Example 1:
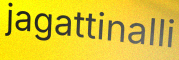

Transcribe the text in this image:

jagattinalli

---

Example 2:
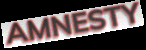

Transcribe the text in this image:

AMNESTY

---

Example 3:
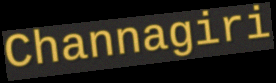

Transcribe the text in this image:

Channagiri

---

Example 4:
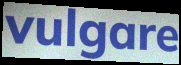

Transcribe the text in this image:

vulgare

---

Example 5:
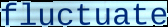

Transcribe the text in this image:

fluctuate